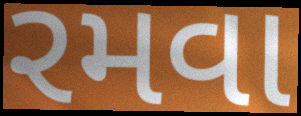
રમવા